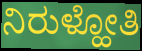
ನಿರುಳ್ಹೋತಿ